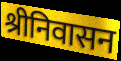
श्रीनिवासन